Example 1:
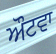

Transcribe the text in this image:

ਔਟਵਾ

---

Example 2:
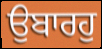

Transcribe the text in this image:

ਉਬਾਰਹੁ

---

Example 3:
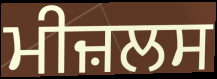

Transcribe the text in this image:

ਮੀਜ਼ਲਸ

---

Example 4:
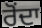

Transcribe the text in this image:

ਰੋਂਦਾ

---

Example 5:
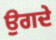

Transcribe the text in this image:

ਉਗਦੇ